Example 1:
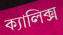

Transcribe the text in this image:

ক্যালিক্স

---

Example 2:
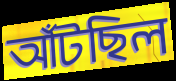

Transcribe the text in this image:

আঁটছিল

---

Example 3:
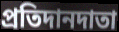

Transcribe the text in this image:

প্রতিদানদাতা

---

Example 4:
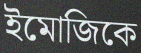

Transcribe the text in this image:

ইমোজিকে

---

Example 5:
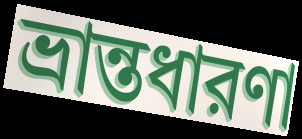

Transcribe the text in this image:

ভ্রান্তধারণা